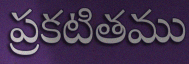
ప్రకటితము